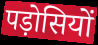
पड़ोसियों